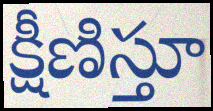
క్షీణిస్తూ